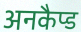
अनकैप्ड